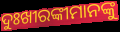
ଦୁଃଖୀରଙ୍କୀମାନଙ୍କୁ